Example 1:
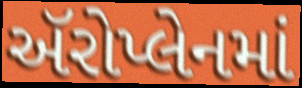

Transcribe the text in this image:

ઍરોપ્લેનમાં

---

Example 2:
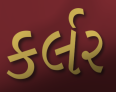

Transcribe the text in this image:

કર્લર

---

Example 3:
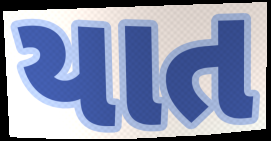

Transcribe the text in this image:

યાત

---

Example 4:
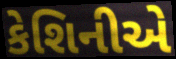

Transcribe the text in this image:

કેશિનીએ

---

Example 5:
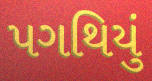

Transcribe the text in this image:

પગથિયું